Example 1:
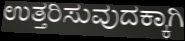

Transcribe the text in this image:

ಉತ್ತರಿಸುವುದಕ್ಕಾಗಿ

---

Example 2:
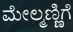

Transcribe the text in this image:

ಮೇಲ್ಮಣ್ಣಿಗೆ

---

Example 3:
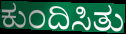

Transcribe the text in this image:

ಕುಂದಿಸಿತು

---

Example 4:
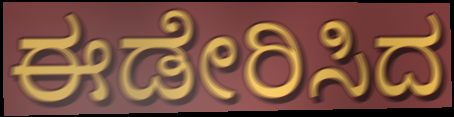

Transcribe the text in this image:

ಈಡೇರಿಸಿದ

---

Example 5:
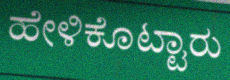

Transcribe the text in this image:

ಹೇಳಿಕೊಟ್ಟಾರು